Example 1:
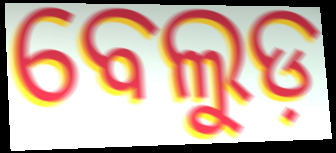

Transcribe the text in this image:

ବେଲୁଡ଼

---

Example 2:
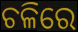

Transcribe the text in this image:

ଚଳିରେ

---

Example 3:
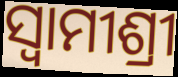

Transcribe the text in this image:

ସ୍ଵାମୀଶ୍ରୀ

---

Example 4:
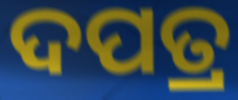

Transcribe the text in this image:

ଦପତ୍ର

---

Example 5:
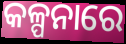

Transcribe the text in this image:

କଳ୍ପନାରେ